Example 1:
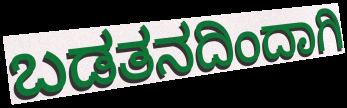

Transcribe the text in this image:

ಬಡತನದಿಂದಾಗಿ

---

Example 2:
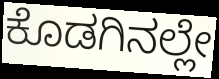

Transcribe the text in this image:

ಕೊಡಗಿನಲ್ಲೇ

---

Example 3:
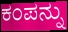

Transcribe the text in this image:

ಕಂಪನ್ನು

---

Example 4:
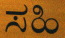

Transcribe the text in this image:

ಸಹಿ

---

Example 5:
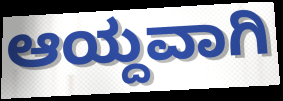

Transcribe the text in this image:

ಆಯ್ದವಾಗಿ